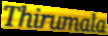
Thirumala